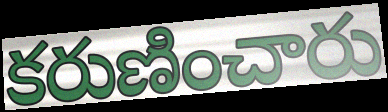
కరుణించారు